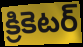
క్రికెటర్